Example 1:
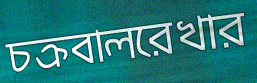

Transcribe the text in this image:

চক্রবালরেখার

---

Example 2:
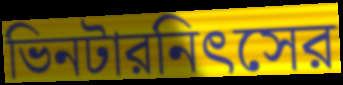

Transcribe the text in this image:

ভিনটারনিৎসের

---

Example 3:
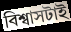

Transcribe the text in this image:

বিশ্বাসটাই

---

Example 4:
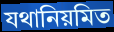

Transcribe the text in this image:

যথানিয়মিত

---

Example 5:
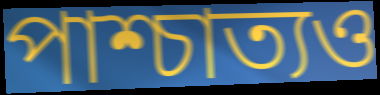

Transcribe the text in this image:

পাশ্চাত্যও